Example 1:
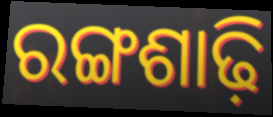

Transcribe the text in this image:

ରଙ୍ଗଶାଢ଼ି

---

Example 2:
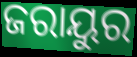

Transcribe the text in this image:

ଜରାୟୁର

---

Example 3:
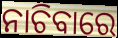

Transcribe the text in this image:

ନାଚିବାରେ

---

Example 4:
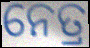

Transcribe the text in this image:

ନେତ୍ର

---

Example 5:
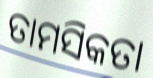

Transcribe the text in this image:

ତାମସିକତା